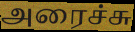
அரைச்சு